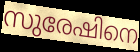
സുരേഷിനെ